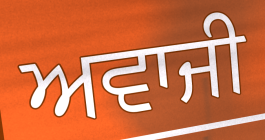
ਅਵਾਜੀ